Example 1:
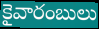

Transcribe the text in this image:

కైవారంబులు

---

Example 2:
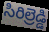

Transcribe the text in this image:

సిరిల్రెడ్డి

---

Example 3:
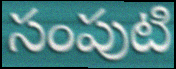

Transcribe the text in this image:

సంపుటి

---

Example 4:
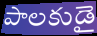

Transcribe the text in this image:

పాలకుడై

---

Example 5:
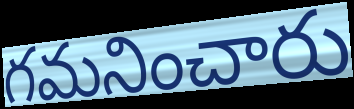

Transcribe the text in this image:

గమనించారు